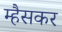
म्हैसकर